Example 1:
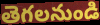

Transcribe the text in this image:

తెగలనుండి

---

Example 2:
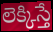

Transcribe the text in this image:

లెక్కిస్తే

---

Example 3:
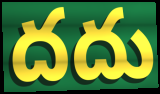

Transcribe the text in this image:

దదు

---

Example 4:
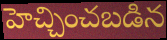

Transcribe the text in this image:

హెచ్చించబడిన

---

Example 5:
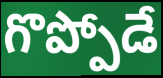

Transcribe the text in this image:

గొప్పోడే